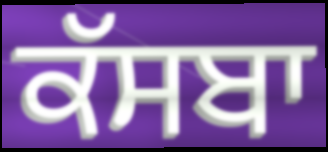
ਕੱਸਬਾ